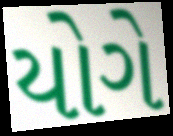
યોગે